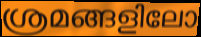
ശ്രമങ്ങളിലോ